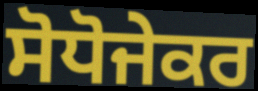
ਸੋਧੋਜੇਕਰ